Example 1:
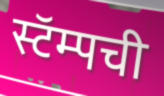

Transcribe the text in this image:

स्टॅम्पची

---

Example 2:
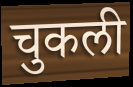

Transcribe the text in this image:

चुकली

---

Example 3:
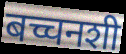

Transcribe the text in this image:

बच्चनशी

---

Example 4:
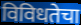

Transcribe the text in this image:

विविधतेचा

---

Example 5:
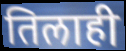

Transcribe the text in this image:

तिलाही